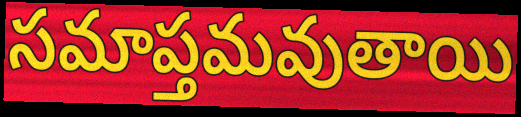
సమాప్తమవుతాయి